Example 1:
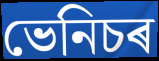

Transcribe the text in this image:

ভেনিচৰ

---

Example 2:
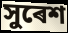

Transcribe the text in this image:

সুৰেশ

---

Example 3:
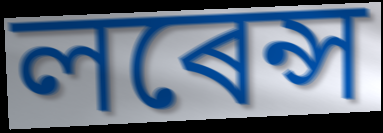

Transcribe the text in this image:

লৰেন্স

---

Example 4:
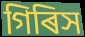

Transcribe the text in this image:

গিৰিস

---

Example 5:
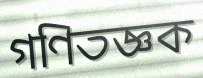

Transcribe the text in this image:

গণিতজ্ঞক